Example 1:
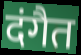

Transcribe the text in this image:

दंगैत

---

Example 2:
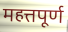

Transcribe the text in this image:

महत्तपूर्ण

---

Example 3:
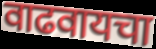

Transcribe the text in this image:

वाढवायचा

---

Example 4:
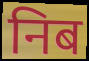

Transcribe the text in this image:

निब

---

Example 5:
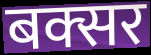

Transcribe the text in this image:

बक्‍सर